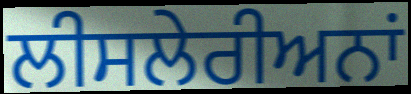
ਲੀਸਲੇਰੀਅਨਾਂ